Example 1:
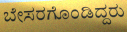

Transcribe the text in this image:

ಬೇಸರಗೊಂಡಿದ್ದರು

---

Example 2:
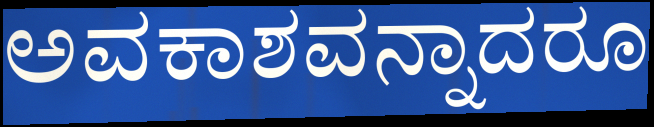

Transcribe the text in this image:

ಅವಕಾಶವನ್ನಾದರೂ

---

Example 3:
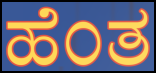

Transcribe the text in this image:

ಹೆಂತ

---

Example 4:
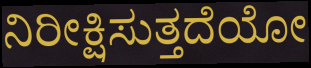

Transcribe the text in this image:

ನಿರೀಕ್ಷಿಸುತ್ತದೆಯೋ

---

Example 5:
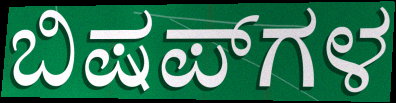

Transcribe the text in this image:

ಬಿಷಪ್‌ಗಳ